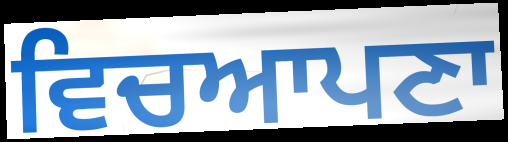
ਵਿਚਆਪਣਾ